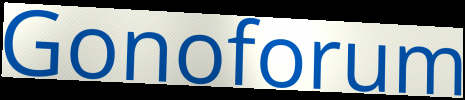
Gonoforum